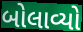
બોલાવ્યો